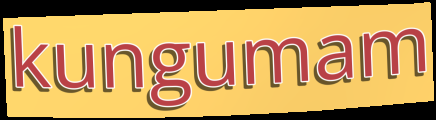
kungumam